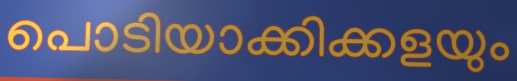
പൊടിയാക്കിക്കളയും